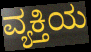
ವ್ಯಕ್ತಿಯ